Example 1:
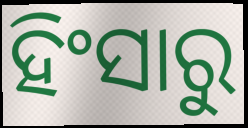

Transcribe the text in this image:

ହିଂସାରୁ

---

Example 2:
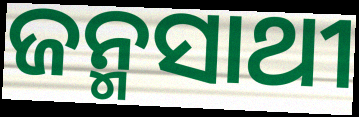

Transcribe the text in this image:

ଜନ୍ମସାଥୀ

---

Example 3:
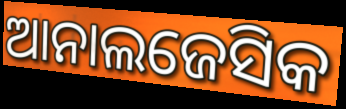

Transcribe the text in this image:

ଆନାଲଜେସିକ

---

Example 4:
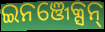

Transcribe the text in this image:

ଇନଞ୍ଜେକ୍ସନ୍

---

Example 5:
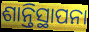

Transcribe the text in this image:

ଶାନ୍ତିସ୍ଥାପନା